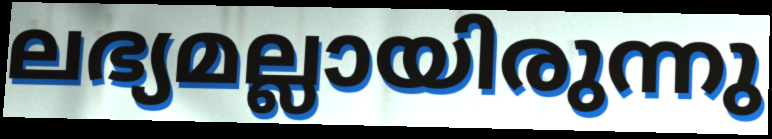
ലഭ്യമല്ലായിരുന്നു